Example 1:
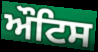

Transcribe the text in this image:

ਔਟਿਸ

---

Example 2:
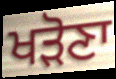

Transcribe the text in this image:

ਖੜੋਣਾ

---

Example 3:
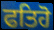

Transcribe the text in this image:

ਫਤਿਹੋ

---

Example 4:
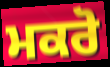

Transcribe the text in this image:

ਮਕਰੋ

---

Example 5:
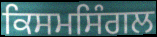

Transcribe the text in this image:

ਕਿਸਮਸਿੰਗਲ